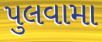
પુલવામા